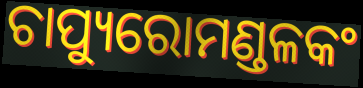
ଚାପ୍ୟୁରୋମଣ୍ଡଳକଂ